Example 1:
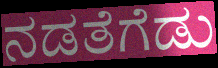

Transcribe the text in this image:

ನಡತೆಗೆಡು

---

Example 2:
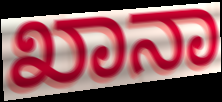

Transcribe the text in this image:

ಖಾನಾ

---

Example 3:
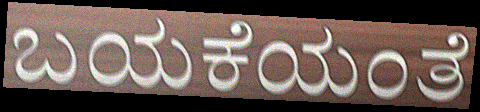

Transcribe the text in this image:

ಬಯಕೆಯಂತೆ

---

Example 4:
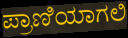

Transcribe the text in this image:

ಪ್ರಾಣಿಯಾಗಲಿ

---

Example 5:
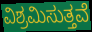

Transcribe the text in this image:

ವಿಶ್ರಮಿಸುತ್ತವೆ